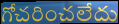
గోచరించలేదు